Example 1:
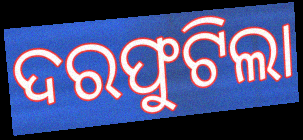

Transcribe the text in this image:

ଦରଫୁଟିଲା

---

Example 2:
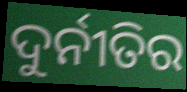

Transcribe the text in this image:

ଦୁର୍ନୀତିର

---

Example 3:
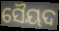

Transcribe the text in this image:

ସୈୟଦ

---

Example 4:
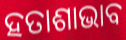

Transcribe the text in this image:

ହତାଶାଭାବ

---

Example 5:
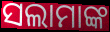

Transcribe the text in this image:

ସଲାମାଙ୍କ